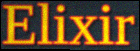
Elixir